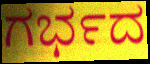
ಗರ್ಭದ